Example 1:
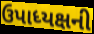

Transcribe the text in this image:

ઉપાધ્યક્ષની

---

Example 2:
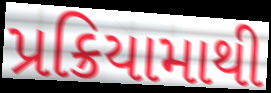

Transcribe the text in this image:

પ્રક્રિયામાથી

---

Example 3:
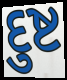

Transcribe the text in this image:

દુષ્ટ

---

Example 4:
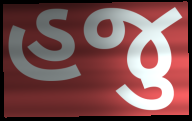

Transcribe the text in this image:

હજુ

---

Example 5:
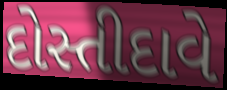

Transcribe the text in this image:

દોસ્તીદાવે